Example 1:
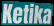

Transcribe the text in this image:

Ketika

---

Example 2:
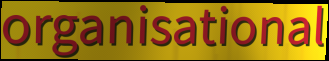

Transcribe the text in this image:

organisational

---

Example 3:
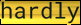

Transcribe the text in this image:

hardly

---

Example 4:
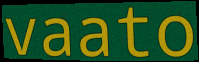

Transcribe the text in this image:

vaato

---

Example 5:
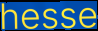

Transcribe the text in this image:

hesse